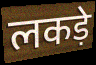
लकड़े